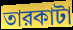
তারকাটা